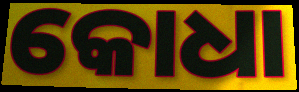
କୋଧା